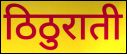
ठिठुराती